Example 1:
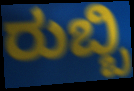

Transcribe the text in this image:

ರುಬ್ಬಿ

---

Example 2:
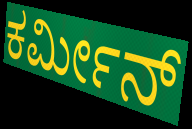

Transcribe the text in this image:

ಕರ್ಮೀನ್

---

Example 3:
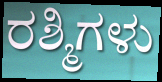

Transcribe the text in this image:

ರಶ್ಮಿಗಳು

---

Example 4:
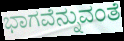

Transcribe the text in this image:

ಭಾಗವೆನ್ನುವಂತೆ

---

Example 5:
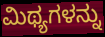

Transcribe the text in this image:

ಮಿಥ್ಯಗಳನ್ನು